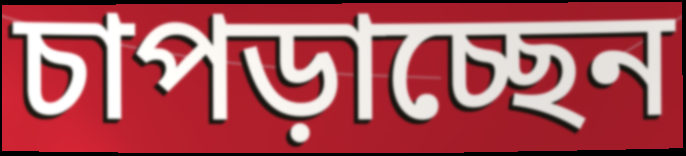
চাপড়াচ্ছেন